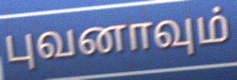
புவனாவும்